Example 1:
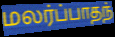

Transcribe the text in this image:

மலர்ப்பாதந்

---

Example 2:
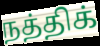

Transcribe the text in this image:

நத்திக்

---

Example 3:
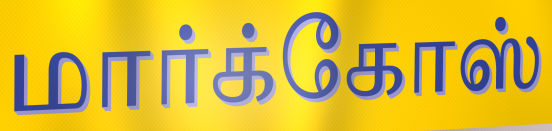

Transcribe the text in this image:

மார்க்கோஸ்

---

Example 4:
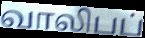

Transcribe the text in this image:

வாலிபப்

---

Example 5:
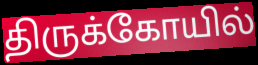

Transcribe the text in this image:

திருக்கோயில்